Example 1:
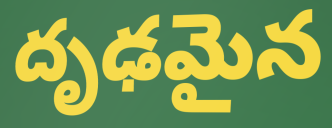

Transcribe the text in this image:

దృఢమైన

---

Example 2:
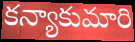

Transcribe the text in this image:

కన్యాకుమారి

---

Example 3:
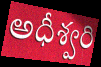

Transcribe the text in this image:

అధీశ్వరి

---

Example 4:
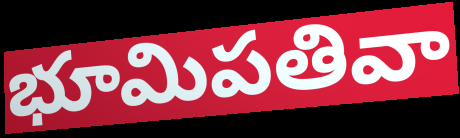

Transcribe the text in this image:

భూమిపతివా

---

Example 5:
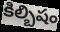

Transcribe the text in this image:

కిల్బిషం